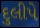
દુલીપે